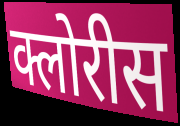
क्लोरीस